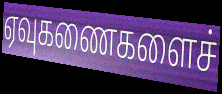
ஏவுகணைகளைச்